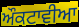
ਔਕਟਾਵੀਆ